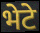
भेटे